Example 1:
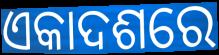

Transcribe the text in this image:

ଏକାଦଶରେ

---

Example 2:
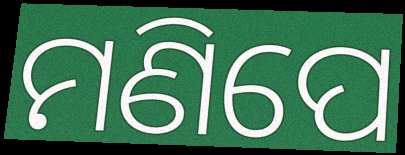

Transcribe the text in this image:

ମଣିପେ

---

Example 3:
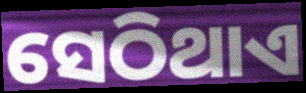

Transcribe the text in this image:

ସେଠିଥାଏ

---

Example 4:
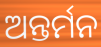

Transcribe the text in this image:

ଅନ୍ତର୍ମନ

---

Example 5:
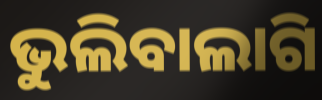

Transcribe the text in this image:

ଭୁଲିବାଲାଗି